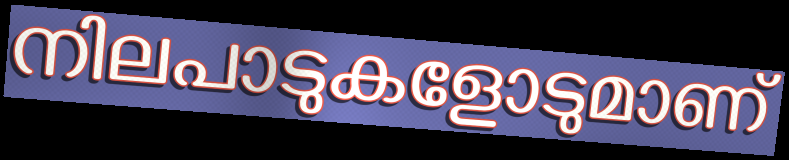
നിലപാടുകളോടുമാണ്